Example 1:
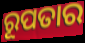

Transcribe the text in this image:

ରୂପତାର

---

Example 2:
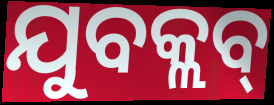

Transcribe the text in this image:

ଯୁବକ୍ଲବ୍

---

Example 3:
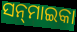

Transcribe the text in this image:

ସନ୍‌ମାଇକା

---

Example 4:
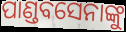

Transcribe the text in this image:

ପାଣ୍ଡବସେନାଙ୍କୁ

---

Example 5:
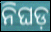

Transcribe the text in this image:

ନିଘଡ଼